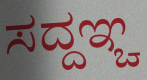
ಸದ್ದಞ್ಚ